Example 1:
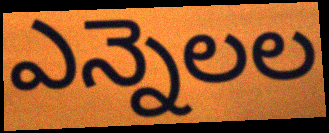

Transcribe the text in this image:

ఎన్నెలల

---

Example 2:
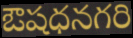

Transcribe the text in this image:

ఔషధనగరి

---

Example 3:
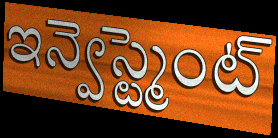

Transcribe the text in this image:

ఇన్వెస్ట్మెంట్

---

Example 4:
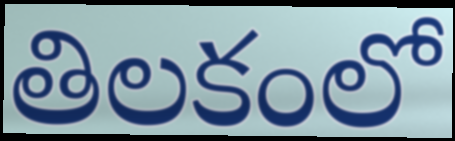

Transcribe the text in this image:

తిలకంలో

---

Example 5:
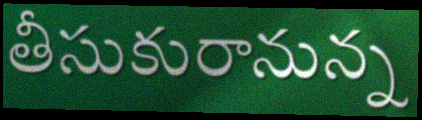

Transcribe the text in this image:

తీసుకురానున్న